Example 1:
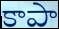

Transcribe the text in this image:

కాపా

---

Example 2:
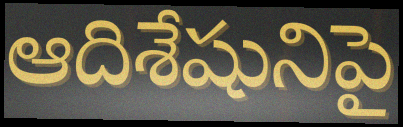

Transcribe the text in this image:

ఆదిశేషునిపై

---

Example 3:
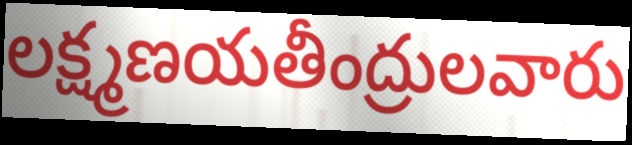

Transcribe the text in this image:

లక్ష్మణయతీంద్రులవారు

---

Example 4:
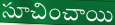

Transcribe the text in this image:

సూచించాయి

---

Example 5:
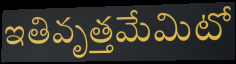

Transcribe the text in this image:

ఇతివృత్తమేమిటో